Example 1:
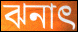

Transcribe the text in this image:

ঝনাৎ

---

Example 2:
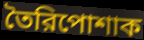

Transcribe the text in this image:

তৈরিপোশাক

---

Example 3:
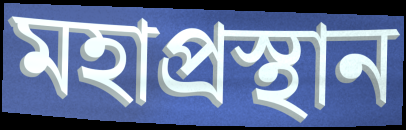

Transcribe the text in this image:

মহাপ্রস্থান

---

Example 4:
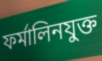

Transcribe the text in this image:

ফর্মালিনযুক্ত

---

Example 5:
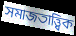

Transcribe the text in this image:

সমাজতাত্ত্বিক